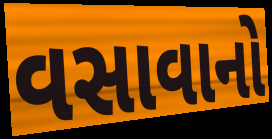
વસાવાનો